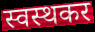
स्वस्थकर